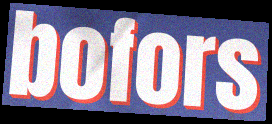
bofors